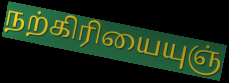
நற்கிரியையுஞ்